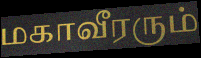
மகாவீரரும்